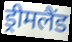
ड्रीमलैंड